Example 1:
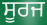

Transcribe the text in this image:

ਸੂਰਜ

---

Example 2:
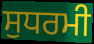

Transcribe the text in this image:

ਸੁਧਰਮੀ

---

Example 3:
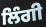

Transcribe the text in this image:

ਲਿੰਗੀ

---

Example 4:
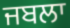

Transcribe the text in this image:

ਜਬਲਾ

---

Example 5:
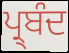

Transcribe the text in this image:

ਪ੍ਰ੍ਬੰਦ